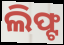
ଲିଫ୍ଟ